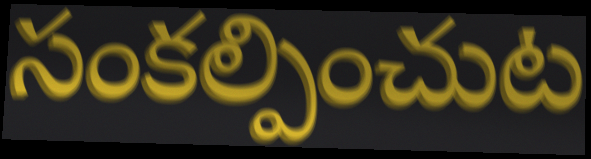
సంకల్పించుట